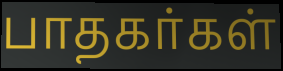
பாதகர்கள்